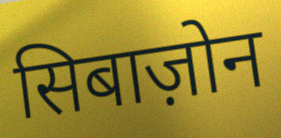
सिबाज़ोन